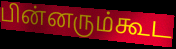
பின்னரும்கூட